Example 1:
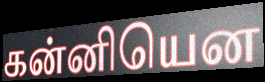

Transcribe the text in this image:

கன்னியென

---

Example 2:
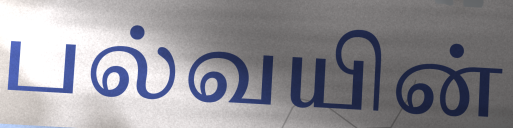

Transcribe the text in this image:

பல்வயின்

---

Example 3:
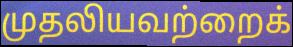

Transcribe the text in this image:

முதலியவற்றைக்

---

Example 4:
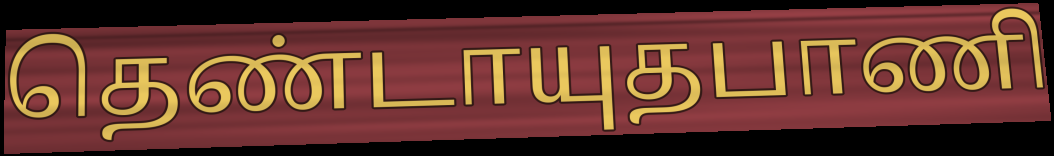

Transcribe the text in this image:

தெண்டாயுதபாணி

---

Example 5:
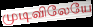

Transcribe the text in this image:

முடிவிலேயே